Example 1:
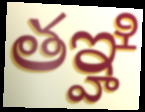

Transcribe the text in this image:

తఞ్హి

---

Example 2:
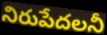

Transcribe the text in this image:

నిరుపేదలనీ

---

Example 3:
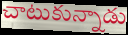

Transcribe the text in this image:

చాటుకున్నాడు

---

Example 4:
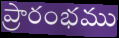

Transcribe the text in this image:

ప్రారంభము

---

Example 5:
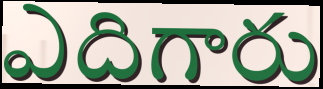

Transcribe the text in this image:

ఎదిగారు